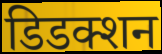
डिडक्शन